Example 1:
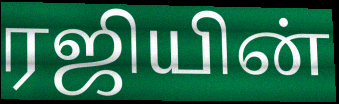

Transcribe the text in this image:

ரஜியின்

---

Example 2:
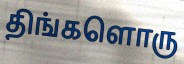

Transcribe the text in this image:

திங்களொரு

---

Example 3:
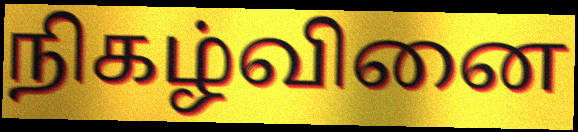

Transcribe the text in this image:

நிகழ்வினை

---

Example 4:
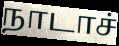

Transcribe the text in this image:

நாடாச்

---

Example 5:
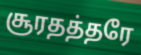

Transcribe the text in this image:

சூரதத்தரே